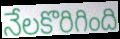
నేలకొరిగింది